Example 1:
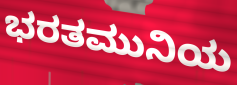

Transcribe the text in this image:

ಭರತಮುನಿಯ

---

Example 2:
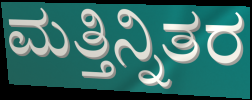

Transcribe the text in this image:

ಮತ್ತಿನ್ನಿತರ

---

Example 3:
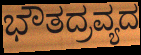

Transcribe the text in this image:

ಭೌತದ್ರವ್ಯದ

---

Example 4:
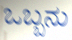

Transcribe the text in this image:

ಒಬ್ಬನು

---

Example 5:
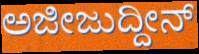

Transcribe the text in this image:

ಅಜೀಜುದ್ದೀನ್